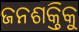
ଜନଶକ୍ତିକୁ